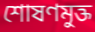
শোষণমুক্ত